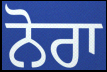
ਨੋਰਾ